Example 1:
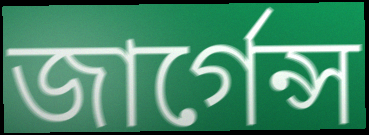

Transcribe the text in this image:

জার্গেন্স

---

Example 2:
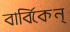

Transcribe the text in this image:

বার্বিকেন্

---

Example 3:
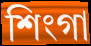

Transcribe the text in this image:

শিংগা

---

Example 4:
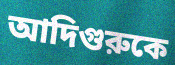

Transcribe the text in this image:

আদিগুরুকে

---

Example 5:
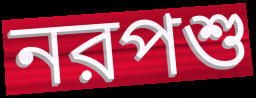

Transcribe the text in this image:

নরপশু